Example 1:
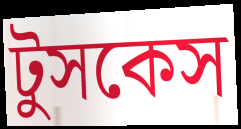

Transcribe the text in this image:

টুসকেস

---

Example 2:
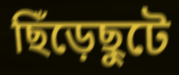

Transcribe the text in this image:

ছিঁড়েছুটে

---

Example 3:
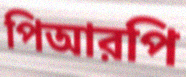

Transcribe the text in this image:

পিআরপি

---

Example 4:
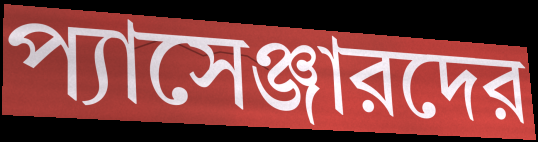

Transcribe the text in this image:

প্যাসেঞ্জারদের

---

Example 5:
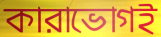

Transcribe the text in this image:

কারাভোগই